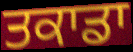
ਤਕਾਡਾ